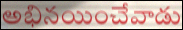
అభినయించేవాడు